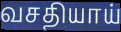
வசதியாய்